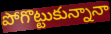
పోగొట్టుకున్నానా